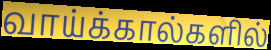
வாய்க்கால்களில்